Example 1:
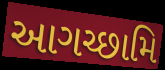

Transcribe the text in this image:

આગચ્છામિ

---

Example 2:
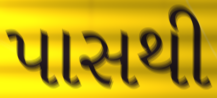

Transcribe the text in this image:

પાસથી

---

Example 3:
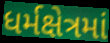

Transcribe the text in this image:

ધર્મક્ષેત્રમાં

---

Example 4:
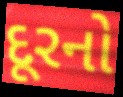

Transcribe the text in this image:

દૂરનો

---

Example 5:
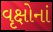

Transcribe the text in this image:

વૃક્ષોનાં